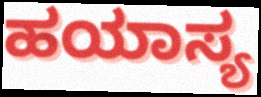
ಹಯಾಸ್ಯ